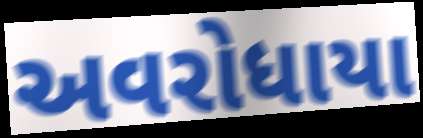
અવરોધાયા